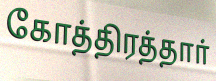
கோத்திரத்தார்